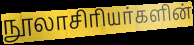
நூலாசிரியர்களின்